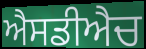
ਐਸਡੀਐਚ